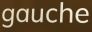
gauche